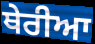
ਥੇਰੀਆ